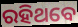
ରହିଥବେ